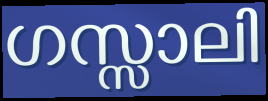
ഗസ്സാലി